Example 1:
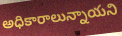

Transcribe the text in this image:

అధికారాలున్నాయని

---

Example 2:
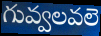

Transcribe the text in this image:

గువ్వలవలె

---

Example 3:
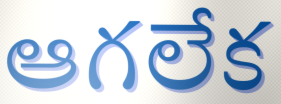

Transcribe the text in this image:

ఆగలేక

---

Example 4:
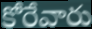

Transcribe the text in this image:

కోరేవారు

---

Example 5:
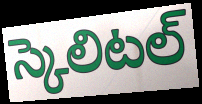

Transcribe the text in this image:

స్కెలిటల్